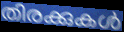
തിരക്കുകൾ